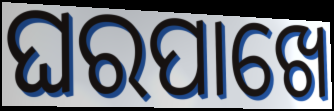
ଘରପାଖେ